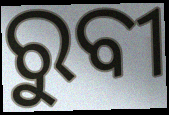
ରୁବୀ